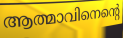
ആത്മാവിനെന്റെ